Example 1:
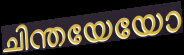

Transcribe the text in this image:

ചിന്തയേയോ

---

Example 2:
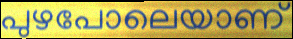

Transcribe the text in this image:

പുഴപോലെയാണ്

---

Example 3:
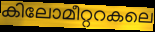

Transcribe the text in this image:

കിലോമീറ്ററകലെ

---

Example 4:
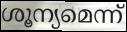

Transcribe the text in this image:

ശൂന്യമെന്ന്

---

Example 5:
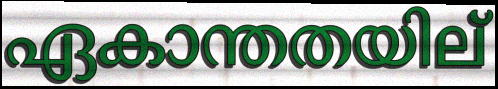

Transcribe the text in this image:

ഏകാന്തതയില്